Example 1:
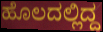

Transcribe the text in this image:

ಹೊಲದಲ್ಲಿದ್ದ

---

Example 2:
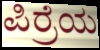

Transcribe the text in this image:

ಪಿರ್ರೆಯ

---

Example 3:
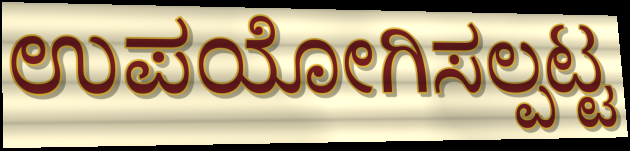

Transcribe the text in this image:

ಉಪಯೋಗಿಸಲ್ಪಟ್ಟ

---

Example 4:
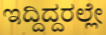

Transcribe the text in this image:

ಇದ್ದಿದ್ದರಲ್ಲೇ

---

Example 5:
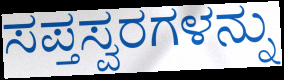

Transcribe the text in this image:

ಸಪ್ತಸ್ವರಗಳನ್ನು